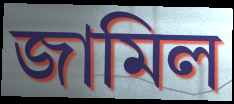
জামিল